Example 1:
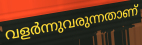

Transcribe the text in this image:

വളർന്നുവരുന്നതാണ്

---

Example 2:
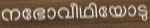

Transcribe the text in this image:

നഭോവീഥിയോടു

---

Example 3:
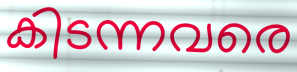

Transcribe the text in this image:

കിടന്നവരെ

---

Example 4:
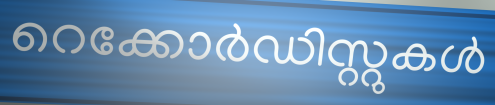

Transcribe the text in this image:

റെക്കോർഡിസ്റ്റുകൾ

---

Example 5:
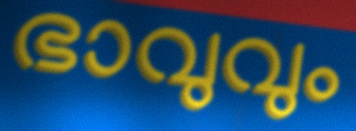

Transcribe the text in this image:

ഭാവുവും